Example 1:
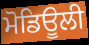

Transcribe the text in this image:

ਮੋਡਿਊਲੀ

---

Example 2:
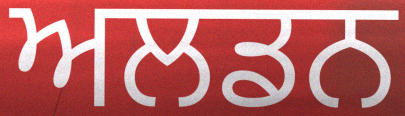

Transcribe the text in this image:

ਅਲਡਨ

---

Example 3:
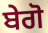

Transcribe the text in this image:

ਬੇਗੋ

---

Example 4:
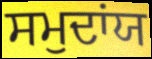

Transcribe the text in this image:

ਸਮੁਦਾਂਯ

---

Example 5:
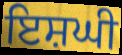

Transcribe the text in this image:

ਇਸ਼ਘੀ